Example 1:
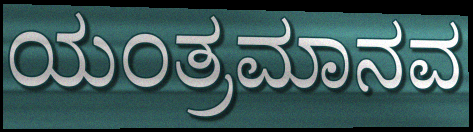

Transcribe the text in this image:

ಯಂತ್ರಮಾನವ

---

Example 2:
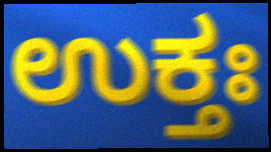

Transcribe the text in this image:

ಉಕ್ತಃ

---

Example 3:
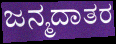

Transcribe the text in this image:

ಜನ್ಮದಾತರ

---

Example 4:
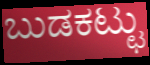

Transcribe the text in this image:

ಬುಡಕಟ್ಟು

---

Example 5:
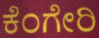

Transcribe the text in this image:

ಕೆಂಗೇರಿ